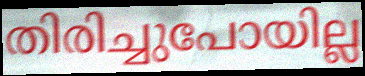
തിരിച്ചുപോയില്ല